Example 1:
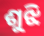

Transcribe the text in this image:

ଶୁଝି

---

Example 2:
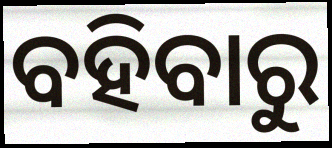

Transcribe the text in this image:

ବହିବାରୁ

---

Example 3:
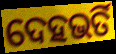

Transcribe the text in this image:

ଦେହଭର୍ତି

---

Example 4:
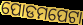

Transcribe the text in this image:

ପୋଡମପେଟା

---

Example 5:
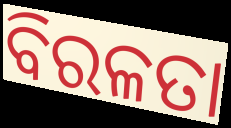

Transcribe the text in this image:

ବିରଳତା